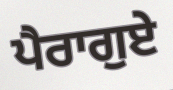
ਪੈਰਾਗੁਏ